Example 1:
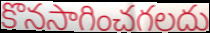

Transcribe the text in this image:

కొనసాగించగలదు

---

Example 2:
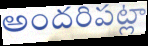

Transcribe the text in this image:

అందరిపట్లా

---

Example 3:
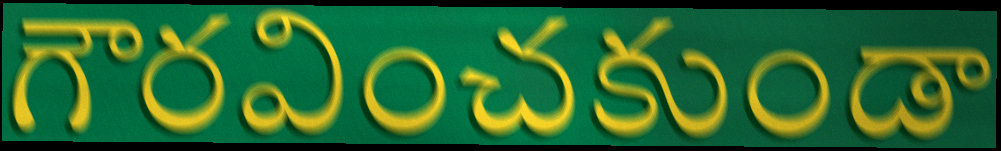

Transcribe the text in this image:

గౌరవించకుండా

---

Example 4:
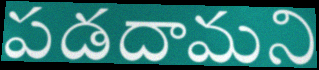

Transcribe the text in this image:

పడదామని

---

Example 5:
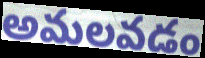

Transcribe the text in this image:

అమలవడం